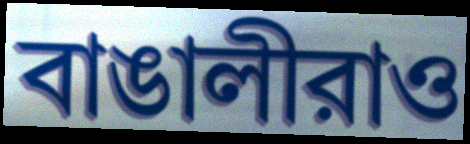
বাঙালীরাও